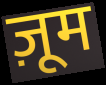
ज़ूम